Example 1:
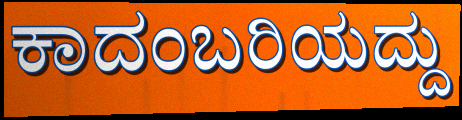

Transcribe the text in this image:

ಕಾದಂಬರಿಯದ್ದು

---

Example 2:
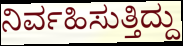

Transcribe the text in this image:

ನಿರ್ವಹಿಸುತ್ತಿದ್ದು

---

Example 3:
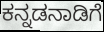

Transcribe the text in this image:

ಕನ್ನಡನಾಡಿಗೆ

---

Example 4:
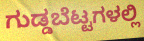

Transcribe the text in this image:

ಗುಡ್ಡಬೆಟ್ಟಗಳಲ್ಲಿ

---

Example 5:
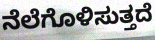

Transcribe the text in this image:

ನೆಲೆಗೊಳಿಸುತ್ತದೆ